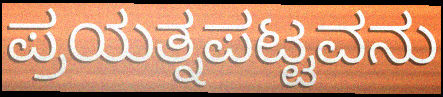
ಪ್ರಯತ್ನಪಟ್ಟವನು